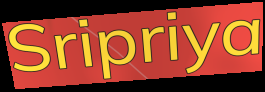
Sripriya